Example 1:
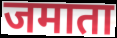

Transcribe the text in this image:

जमाता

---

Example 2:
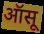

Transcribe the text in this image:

ऑसू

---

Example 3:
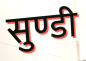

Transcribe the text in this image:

सुण्डी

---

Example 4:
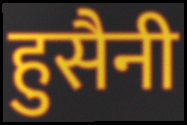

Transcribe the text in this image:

हुसैनी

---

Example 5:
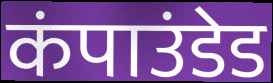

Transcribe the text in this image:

कंपाउंडेड